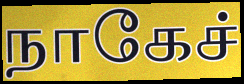
நாகேச்